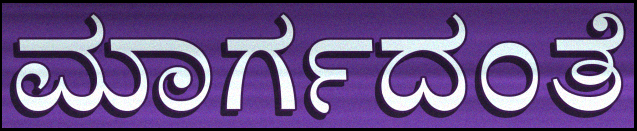
ಮಾರ್ಗದಂತೆ